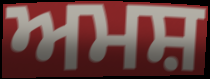
ਅਮਸ਼